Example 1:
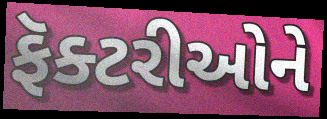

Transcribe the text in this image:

ફૅક્ટરીઓને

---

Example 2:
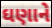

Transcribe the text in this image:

ઘણાને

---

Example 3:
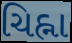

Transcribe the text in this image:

ચિહ્ના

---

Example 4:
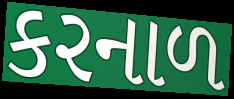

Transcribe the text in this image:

કરનાળ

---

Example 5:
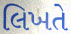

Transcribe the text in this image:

લિખતે